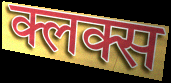
क्लक्स